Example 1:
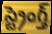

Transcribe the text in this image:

స్ట్రెంగ్త్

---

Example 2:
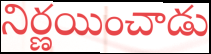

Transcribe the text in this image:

నిర్ణయించాడు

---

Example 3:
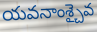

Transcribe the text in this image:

యవనాంశ్చైవ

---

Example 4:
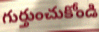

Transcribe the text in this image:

గుర్తుంచుకోండి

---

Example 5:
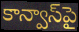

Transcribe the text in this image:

కాన్వాస్‌పై